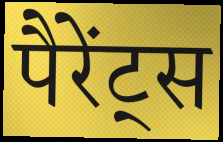
पैरेंट्स